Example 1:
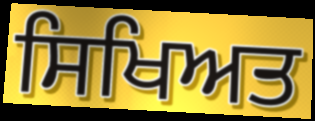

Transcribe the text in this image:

ਸਿਖਿਅਤ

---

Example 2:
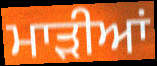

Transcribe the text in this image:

ਮਾੜੀਆਂ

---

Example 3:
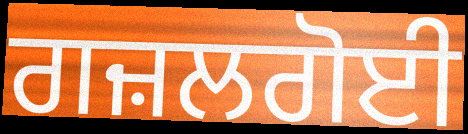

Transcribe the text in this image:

ਗਜ਼ਲਗੋਈ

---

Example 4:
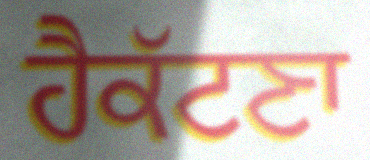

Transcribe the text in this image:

ਹੈਕੱਟਣਾ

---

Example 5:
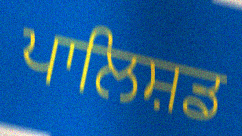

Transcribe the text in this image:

ਪਾਲਿਸ਼ਡ